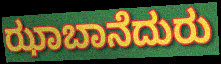
ಝಾಬಾನೆದುರು